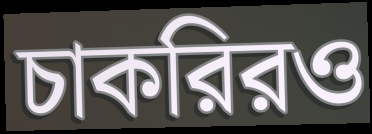
চাকরিরও